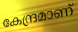
കേന്ദ്രമാണ്